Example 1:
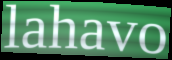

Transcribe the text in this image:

lahavo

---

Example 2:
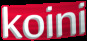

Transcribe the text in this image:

koini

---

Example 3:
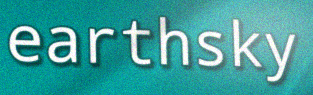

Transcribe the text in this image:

earthsky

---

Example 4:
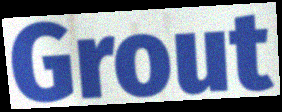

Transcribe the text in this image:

Grout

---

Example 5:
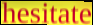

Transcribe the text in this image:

hesitate